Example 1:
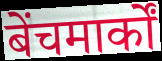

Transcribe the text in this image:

बेंचमार्कों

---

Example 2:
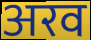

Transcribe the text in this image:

अरव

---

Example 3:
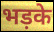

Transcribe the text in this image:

भड़के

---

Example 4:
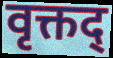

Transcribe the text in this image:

वृक्तद्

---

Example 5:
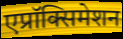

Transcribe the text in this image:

एप्रॉक्सिमेशन